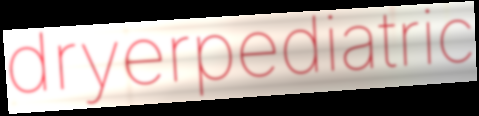
dryerpediatric